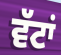
ਵੱਟਾਂ